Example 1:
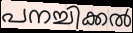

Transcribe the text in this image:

പനച്ചിക്കൽ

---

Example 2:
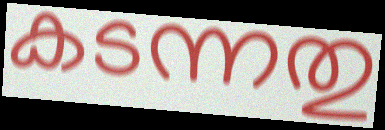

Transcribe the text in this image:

കടന്നതു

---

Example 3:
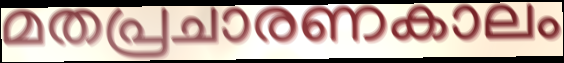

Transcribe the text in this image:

മതപ്രചാരണകാലം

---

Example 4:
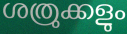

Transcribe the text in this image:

ശത്രുക്കളും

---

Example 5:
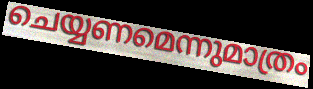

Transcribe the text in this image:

ചെയ്യണമെന്നുമാത്രം